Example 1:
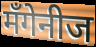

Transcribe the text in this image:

मँगेनीज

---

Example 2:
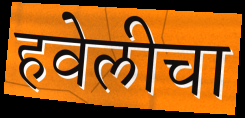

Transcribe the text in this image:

हवेलीचा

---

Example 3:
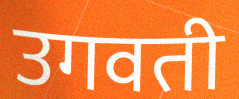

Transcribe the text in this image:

उगवती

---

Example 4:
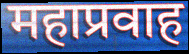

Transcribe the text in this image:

महाप्रवाह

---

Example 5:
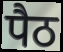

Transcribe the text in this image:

पैठ